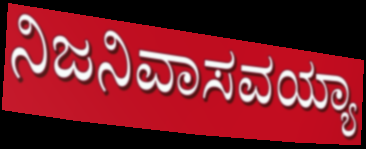
ನಿಜನಿವಾಸವಯ್ಯಾ